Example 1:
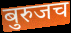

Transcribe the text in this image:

बुरुजच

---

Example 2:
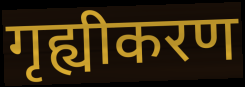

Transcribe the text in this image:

गृह्यीकरण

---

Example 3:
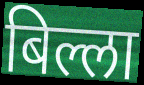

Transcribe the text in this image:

बिल्ला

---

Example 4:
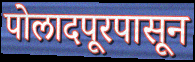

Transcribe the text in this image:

पोलादपूरपासून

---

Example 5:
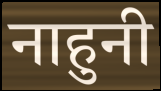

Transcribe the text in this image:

नाहुनी